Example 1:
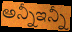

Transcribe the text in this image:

అన్నీఇన్నీ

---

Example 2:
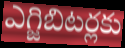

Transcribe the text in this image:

ఎగ్జిబిటర్లకు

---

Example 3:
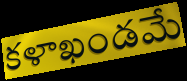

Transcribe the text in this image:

కళాఖండమే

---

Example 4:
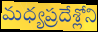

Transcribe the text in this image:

మధ్యప్రదేశ్లోని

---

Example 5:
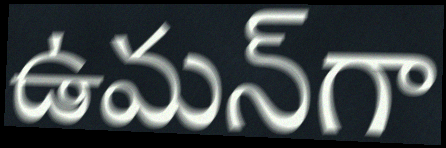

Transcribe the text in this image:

ఉమన్‌గా